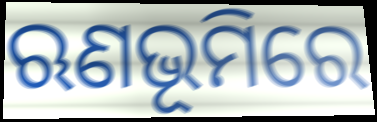
ଋଣଭୂମିରେ